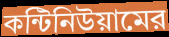
কন্টিনিউয়ামের